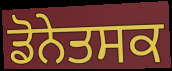
ਡੋਨੇਤਸਕ